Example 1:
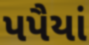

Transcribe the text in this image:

પપૈયાં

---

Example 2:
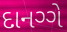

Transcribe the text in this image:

દાનગ્ગે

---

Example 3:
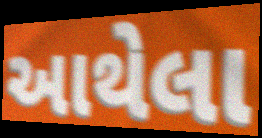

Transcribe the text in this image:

આથેલા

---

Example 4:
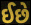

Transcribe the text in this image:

ઈછે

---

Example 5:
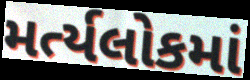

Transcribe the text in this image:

મર્ત્યલોકમાં